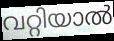
വറ്റിയാൽ